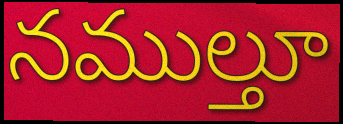
నముల్తూ